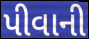
પીવાની